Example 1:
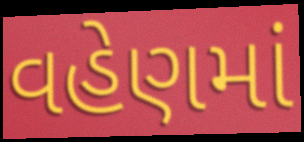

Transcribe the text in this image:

વહેણમાં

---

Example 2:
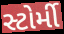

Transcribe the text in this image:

સ્ટોર્મી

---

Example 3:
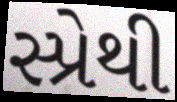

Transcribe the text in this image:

સ્પ્રેથી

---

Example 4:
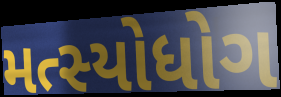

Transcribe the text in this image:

મત્સ્યોધોગ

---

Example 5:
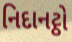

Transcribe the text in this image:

નિદાનટ્ઠો